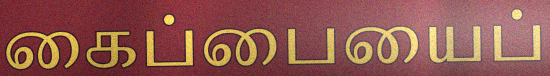
கைப்பையைப்